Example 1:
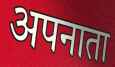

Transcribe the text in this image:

अपनाता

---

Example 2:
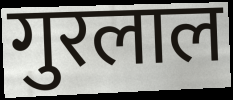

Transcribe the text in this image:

गुरलाल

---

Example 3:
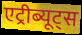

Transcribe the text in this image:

एट्रीब्यूट्स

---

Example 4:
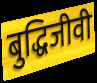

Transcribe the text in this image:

बुद्धिजीवी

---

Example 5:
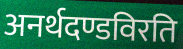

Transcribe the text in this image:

अनर्थदण्डविरति